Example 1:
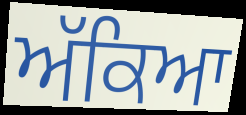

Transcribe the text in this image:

ਅੱਕਿਆ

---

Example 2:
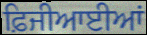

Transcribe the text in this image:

ਫ਼ਿਜੀਆਈਆਂ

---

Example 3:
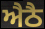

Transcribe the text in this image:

ਐਠੈ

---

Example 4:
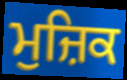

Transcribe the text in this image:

ਮੁਜ਼ਿਕ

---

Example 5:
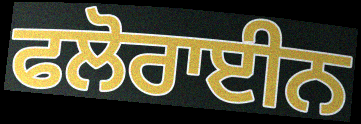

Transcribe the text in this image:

ਫਲੋਰਾਈਨ